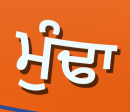
ਮੁੰਢਾ